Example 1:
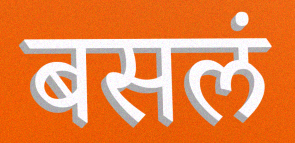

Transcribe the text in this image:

बसलं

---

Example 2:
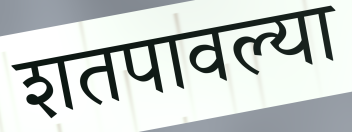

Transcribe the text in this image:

शतपावल्या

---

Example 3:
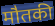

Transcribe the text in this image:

मौतकी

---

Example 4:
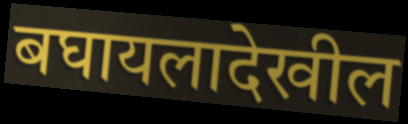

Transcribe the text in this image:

बघायलादेखील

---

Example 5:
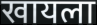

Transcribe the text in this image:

खायला